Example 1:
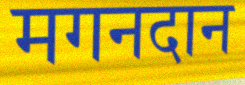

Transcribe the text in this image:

मगनदान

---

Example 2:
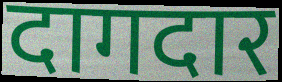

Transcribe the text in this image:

दागदार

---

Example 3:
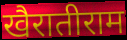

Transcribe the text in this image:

खैरातीराम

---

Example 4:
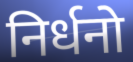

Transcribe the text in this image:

निर्धनो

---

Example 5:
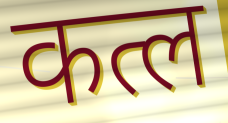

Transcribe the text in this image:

कत्ल